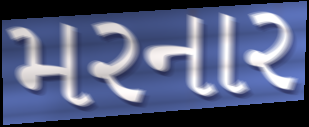
મરનાર